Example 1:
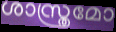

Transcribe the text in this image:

ശാസ്ത്രമോ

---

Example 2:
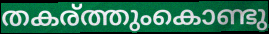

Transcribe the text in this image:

തകര്ത്തുംകൊണ്ടു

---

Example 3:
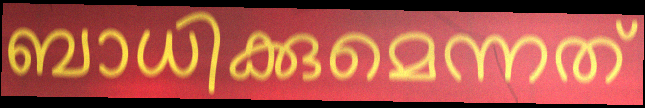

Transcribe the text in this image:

ബാധിക്കുമെന്നത്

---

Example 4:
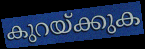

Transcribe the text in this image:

കുറയ്ക്കുക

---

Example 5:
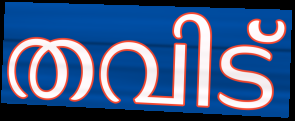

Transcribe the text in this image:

തവിട്